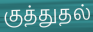
குத்துதல்